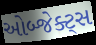
ઓબ્જેક્ટ્સ